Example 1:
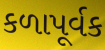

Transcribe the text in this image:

કળાપૂર્વક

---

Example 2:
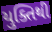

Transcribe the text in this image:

યુક્તિથી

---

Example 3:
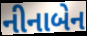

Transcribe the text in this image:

નીનાબેન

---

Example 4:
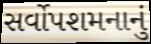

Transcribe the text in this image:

સર્વોપશમનાનું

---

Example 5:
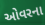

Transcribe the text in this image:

ઓવરના